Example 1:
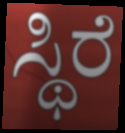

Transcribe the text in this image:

ಸ್ಥಿರೆ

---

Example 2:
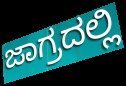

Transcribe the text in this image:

ಜಾಗ್ರದಲ್ಲಿ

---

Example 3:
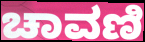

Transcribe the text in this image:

ಚಾವಣಿ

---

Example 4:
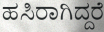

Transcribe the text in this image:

ಹಸಿರಾಗಿದ್ದರೆ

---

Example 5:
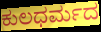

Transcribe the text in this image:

ಕುಲಧರ್ಮದ